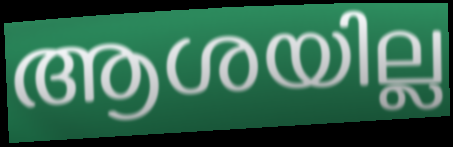
ആശയില്ല